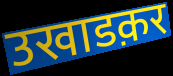
उखाडक़र